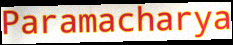
Paramacharya